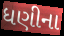
ધણીના